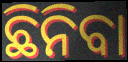
ଛିନିବା